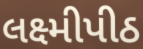
લક્ષ્મીપીઠ